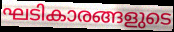
ഘടികാരങ്ങളുടെ